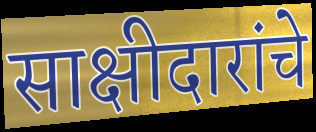
साक्षीदारांचे